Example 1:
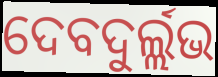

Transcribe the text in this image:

ଦେବଦୁର୍ଲ୍ଲଭ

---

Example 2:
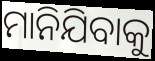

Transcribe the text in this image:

ମାନିଯିବାକୁ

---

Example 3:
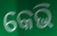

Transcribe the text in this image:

କେଭି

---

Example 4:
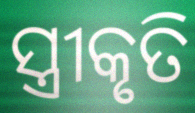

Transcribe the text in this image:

ସ୍ତ୍ରୀକୃତି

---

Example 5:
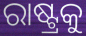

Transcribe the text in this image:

ରାଷ୍ଟ୍ରକୁ